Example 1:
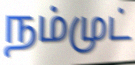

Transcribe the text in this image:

நம்முட்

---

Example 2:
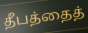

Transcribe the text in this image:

தீபத்தைத்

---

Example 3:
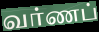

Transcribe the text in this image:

வர்ணப்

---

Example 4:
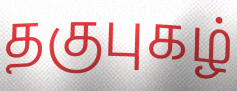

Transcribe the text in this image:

தகுபுகழ்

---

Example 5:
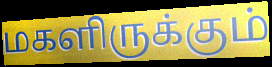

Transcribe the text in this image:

மகளிருக்கும்